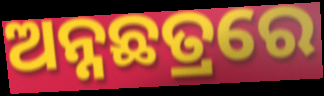
ଅନ୍ନଛତ୍ରରେ